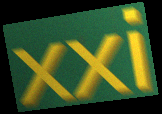
xxi